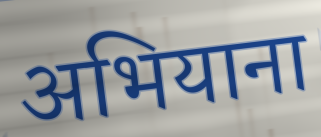
अभियाना